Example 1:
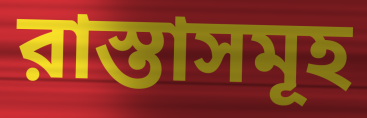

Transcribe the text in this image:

রাস্তাসমূহ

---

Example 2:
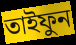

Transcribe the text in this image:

তাইফুন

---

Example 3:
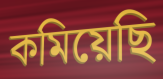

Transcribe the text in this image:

কমিয়েছি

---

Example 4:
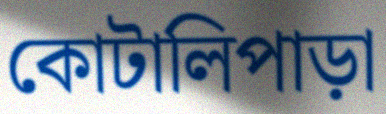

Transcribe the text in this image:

কোটালিপাড়া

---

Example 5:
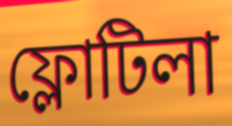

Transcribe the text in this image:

ফ্লোটিলা